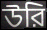
উরি